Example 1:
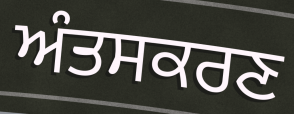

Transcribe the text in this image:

ਅੰਤਸਕਰਣ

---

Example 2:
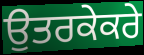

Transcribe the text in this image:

ਉਤਰਕੇਕਰੇ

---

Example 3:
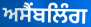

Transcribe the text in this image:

ਅਸੈਂਬਲਿੰਗ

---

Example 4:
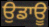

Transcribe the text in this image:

ਉਡਾਊ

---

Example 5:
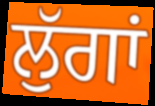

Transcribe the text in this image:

ਲੁੱਗਾਂ